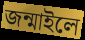
জন্মাইলে